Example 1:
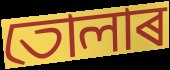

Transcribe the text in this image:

তোলাৰ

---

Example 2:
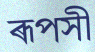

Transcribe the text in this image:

ৰূপসী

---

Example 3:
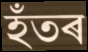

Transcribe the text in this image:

হঁতৰ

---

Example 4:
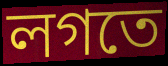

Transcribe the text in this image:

লগতে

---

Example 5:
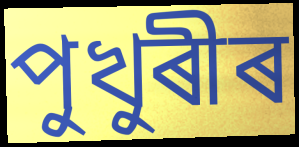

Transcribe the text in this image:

পুখুৰীৰ